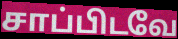
சாப்பிடவே